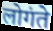
लोगंते